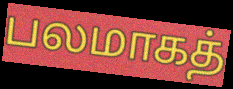
பலமாகத்